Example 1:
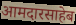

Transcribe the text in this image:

आमदारसाहेब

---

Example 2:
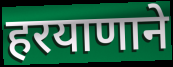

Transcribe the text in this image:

हरयाणाने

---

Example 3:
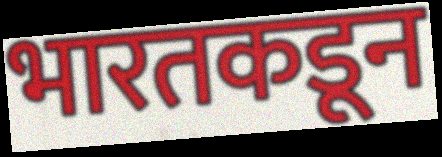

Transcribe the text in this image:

भारतकडून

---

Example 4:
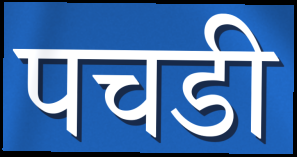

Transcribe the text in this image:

पचडी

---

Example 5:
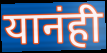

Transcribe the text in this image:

यानंही